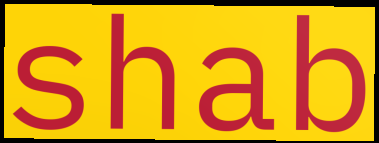
shab